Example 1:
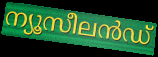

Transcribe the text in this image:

ന്യൂസീലൻഡ്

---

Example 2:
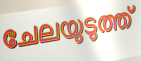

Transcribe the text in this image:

ചേലയുടുത്ത്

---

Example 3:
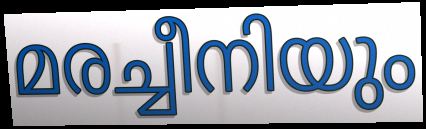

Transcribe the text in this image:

മരച്ചീനിയും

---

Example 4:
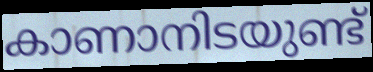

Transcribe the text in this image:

കാണാനിടയുണ്ട്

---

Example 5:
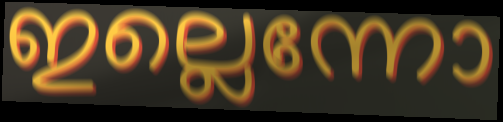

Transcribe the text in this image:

ഇല്ലെന്നോ